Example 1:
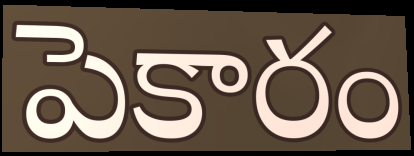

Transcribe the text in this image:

పెకారం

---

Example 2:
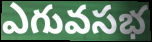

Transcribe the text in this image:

ఎగువసభ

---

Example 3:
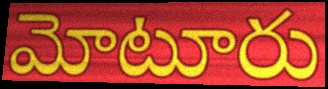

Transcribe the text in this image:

మోటూరు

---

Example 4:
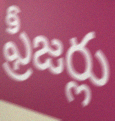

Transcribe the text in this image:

ఫ్రీజర్లు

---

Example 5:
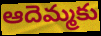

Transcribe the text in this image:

ఆదెమ్మకు